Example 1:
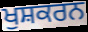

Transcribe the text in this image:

ਖੁਸ਼ਕਰਨ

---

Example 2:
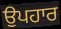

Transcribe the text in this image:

ਉਪਹਾਰ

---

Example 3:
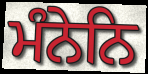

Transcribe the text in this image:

ਮੰਨੇਨਿ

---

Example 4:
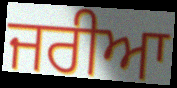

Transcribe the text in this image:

ਜਰੀਆ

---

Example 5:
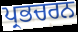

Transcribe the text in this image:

ਪ੍ਰਭਚਰਨ